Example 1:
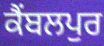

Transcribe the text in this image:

ਕੈਂਬਲਪੁਰ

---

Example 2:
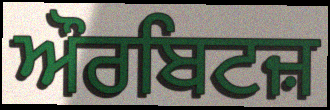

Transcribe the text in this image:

ਔਰਬਿਟਜ਼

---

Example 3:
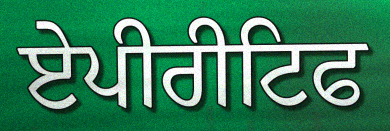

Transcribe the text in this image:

ਏਪੀਰੀਟਿਫ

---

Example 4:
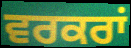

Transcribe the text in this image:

ਵਰਕਰਾਂ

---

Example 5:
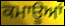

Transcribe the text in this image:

ਕਮਾਊਆਂ